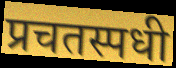
प्रचतस्पधी